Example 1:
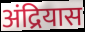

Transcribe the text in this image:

अंद्रियास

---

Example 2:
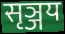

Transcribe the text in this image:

सृञ्जय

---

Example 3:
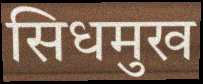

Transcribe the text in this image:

सिधमुख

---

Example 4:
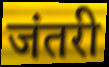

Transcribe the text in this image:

जंतरी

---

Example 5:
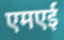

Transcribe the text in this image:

एमएई